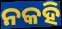
ନକହି